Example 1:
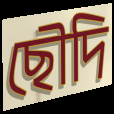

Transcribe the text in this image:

ছৌদি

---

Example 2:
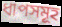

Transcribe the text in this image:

ধাপসমূহ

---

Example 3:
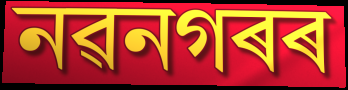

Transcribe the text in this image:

নৱনগৰৰ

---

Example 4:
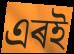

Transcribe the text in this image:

এৰই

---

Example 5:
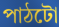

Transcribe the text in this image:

পাঠটো